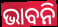
ଭାବନି